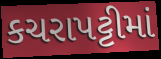
કચરાપટ્ટીમાં